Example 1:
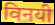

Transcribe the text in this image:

विनयी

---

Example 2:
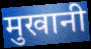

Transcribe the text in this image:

मुखानी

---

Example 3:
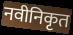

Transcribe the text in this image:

नवीनिकृत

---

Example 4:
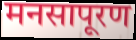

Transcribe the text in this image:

मनसापूरण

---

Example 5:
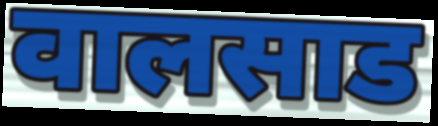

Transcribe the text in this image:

वालसाड